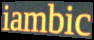
iambic